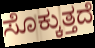
ಸೊಕ್ಕುತ್ತದೆ